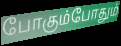
போகும்போதும்